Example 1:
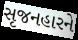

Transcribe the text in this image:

સૃજનહારને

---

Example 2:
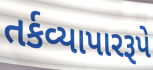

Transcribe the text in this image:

તર્કવ્યાપારરૂપે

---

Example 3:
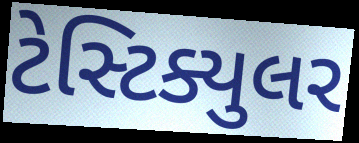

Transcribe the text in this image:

ટેસ્ટિક્યુલર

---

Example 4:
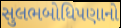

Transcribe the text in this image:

સુલભબોધિપણાનો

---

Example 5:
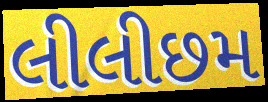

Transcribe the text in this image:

લીલીછમ